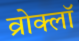
व्रोक्लॉ